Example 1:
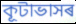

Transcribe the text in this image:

কূটাভাসৰ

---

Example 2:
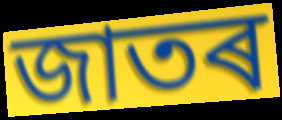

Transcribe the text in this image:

জাতৰ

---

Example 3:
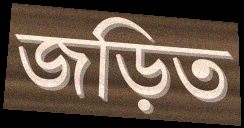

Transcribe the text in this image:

জড়িত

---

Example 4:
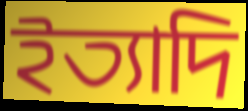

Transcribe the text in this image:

ইত্যাদি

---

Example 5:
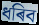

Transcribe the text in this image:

ধৰিব